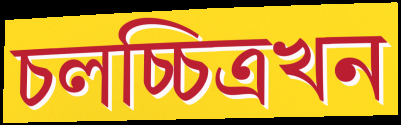
চলচ্চিত্ৰখন